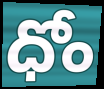
ధోం